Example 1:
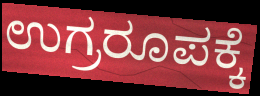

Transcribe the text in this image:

ಉಗ್ರರೂಪಕ್ಕೆ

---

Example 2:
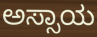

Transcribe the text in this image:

ಅಸ್ಸಾಯ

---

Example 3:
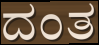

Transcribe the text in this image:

ದಂತ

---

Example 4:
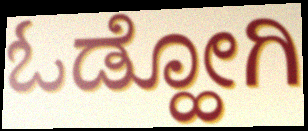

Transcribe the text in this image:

ಓಡ್ಹೋಗಿ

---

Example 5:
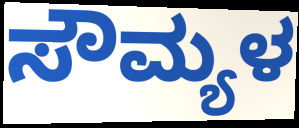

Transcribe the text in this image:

ಸೌಮ್ಯಳ